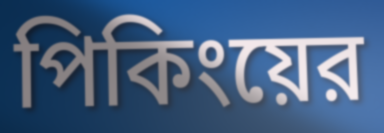
পিকিংয়ের